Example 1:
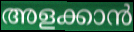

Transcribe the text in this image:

അളക്കാൻ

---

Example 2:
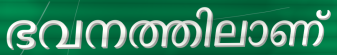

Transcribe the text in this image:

ഭവനത്തിലാണ്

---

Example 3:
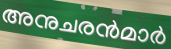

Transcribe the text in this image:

അനുചരൻമാർ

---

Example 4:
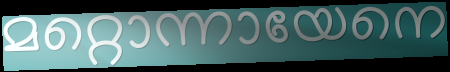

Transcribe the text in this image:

മറ്റൊന്നായേനെ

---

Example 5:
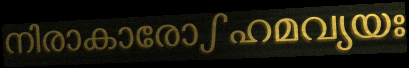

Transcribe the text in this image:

നിരാകാരോഽഹമവ്യയഃ